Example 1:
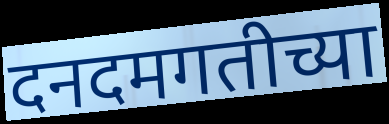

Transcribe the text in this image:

दनदमगतीच्या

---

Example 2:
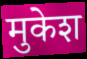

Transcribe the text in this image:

मुकेश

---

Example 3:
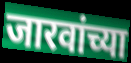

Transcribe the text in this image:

जारवांच्या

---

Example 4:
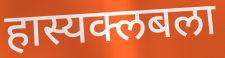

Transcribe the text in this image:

हास्यक्लबला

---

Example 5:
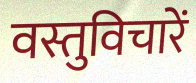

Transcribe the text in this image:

वस्तुविचारें